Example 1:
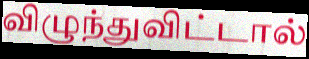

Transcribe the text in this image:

விழுந்துவிட்டால்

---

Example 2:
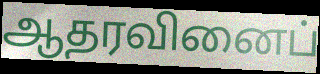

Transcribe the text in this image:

ஆதரவினைப்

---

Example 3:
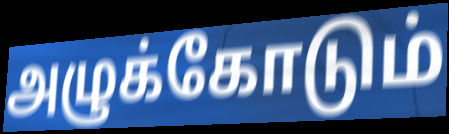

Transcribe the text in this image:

அழுக்கோடும்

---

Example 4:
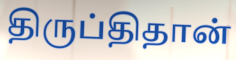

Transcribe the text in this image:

திருப்திதான்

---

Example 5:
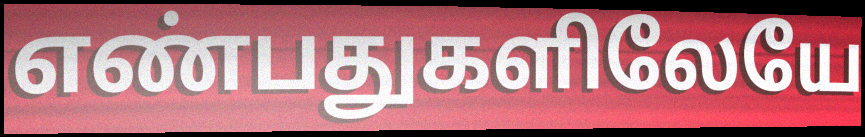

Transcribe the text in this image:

எண்பதுகளிலேயே